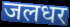
जलधर